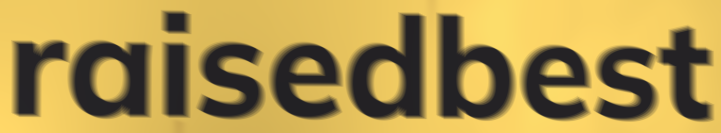
raisedbest